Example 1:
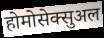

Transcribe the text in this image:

होमोसेक्सुअल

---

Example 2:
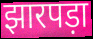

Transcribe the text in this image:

झारपड़ा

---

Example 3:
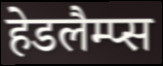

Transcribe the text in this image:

हेडलैम्प्स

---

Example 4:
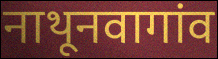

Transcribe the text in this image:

नाथूनवागांव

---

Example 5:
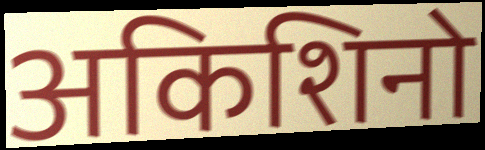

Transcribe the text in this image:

अकिशिनो